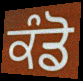
ਕੰਡੋ